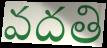
వదతి